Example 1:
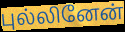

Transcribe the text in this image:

புல்லினேன்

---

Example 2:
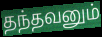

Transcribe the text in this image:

தந்தவனும்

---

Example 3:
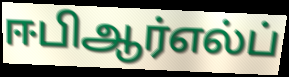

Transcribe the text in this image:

ஈபிஆர்எல்ப்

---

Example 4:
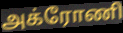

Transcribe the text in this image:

அக்ரோணி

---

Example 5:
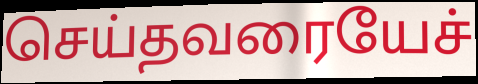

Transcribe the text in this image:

செய்தவரையேச்